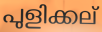
പുളിക്കല്